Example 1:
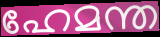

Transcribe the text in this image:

ഹേമന്ത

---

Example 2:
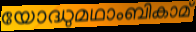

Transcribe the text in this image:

യോദ്ധുമഥാംബികാമ്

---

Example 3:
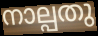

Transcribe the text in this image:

നാല്പതു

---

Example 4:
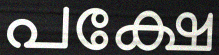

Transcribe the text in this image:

പക്ഷേ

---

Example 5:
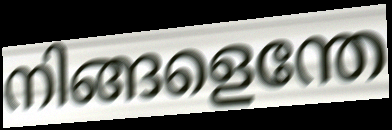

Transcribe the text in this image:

നിങ്ങളെന്തേ